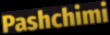
Pashchimi